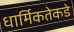
धार्मिकतेकडे